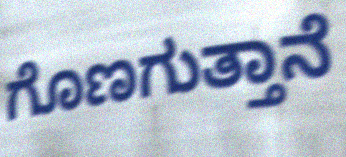
ಗೊಣಗುತ್ತಾನೆ